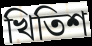
খিতিশ